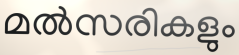
മൽസരികളും